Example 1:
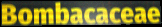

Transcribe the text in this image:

Bombacaceae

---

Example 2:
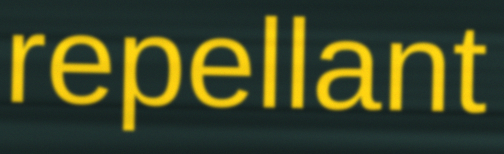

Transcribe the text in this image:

repellant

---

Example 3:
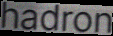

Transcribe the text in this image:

hadron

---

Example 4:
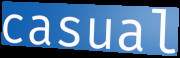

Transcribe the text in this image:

casual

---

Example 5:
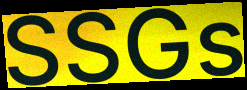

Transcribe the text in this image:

SSGs